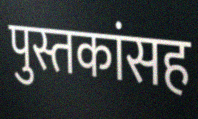
पुस्तकांसह